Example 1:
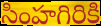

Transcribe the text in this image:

సింహగిరికి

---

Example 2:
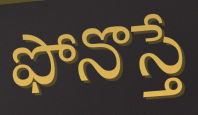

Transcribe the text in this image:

ఫోనొస్తే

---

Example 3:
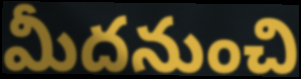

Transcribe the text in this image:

మీదనుంచి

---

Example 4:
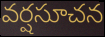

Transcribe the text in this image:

వర్షసూచన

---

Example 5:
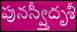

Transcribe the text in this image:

పునస్వ్తీదృశీ